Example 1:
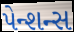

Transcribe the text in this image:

પેન્શન્સ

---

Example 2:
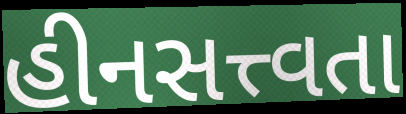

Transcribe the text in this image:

હીનસત્ત્વતા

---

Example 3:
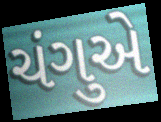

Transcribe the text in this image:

ચંગુએ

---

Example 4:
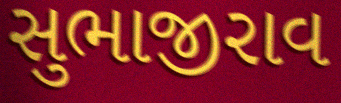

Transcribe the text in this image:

સુભાજીરાવ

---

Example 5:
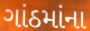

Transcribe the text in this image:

ગાંઠમાંના